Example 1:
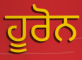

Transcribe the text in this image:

ਹੂਰੋਨ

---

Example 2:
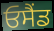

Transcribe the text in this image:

ਓਸੈਂਡ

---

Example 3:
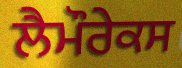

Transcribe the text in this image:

ਲੈਮੌਰੇਕਸ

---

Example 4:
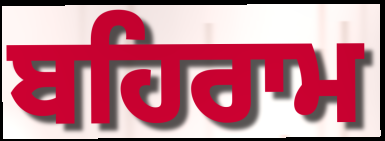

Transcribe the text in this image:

ਬਹਿਰਾਮ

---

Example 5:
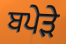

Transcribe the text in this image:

ਬਪੇੜੇ